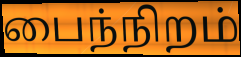
பைந்நிறம்